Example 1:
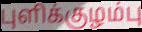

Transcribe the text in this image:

புளிக்குழம்பு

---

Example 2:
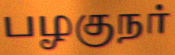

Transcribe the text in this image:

பழகுநர்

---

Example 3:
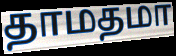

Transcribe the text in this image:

தாமதமா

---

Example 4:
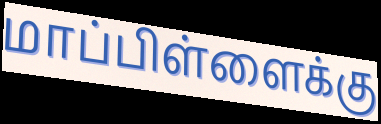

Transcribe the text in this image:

மாப்பிள்ளைக்கு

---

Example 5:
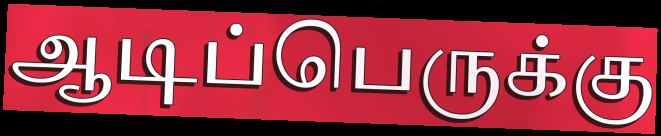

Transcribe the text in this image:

ஆடிப்பெருக்கு